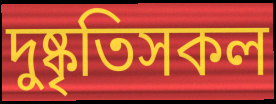
দুষ্কৃতিসকল